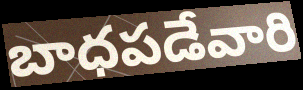
బాధపడేవారి